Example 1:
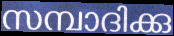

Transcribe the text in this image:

സമ്പാദിക്കു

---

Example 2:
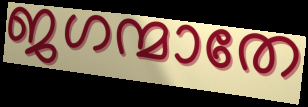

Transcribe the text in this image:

ജഗന്മാതേ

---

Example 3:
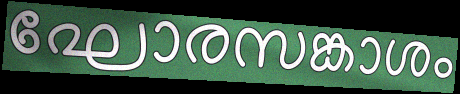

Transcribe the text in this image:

ഘോരസങ്കാശം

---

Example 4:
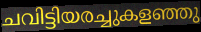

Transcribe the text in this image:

ചവിട്ടിയരച്ചുകളഞ്ഞു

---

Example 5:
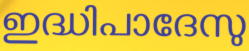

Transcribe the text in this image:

ഇദ്ധിപാദേസു